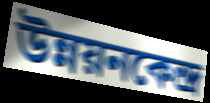
উন্নয়নকেন্দ্র